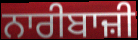
ਨਾਰੀਬਾਜ਼ੀ